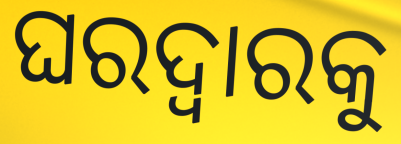
ଘରଦ୍ୱାରକୁ